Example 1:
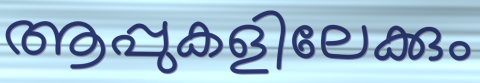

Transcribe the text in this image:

ആപ്പുകളിലേക്കും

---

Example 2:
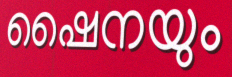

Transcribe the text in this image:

ഷൈനയും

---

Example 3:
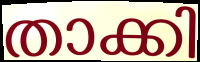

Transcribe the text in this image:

താക്കി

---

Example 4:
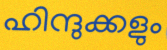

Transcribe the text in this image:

ഹിന്ദുക്കളും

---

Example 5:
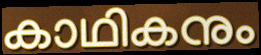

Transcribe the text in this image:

കാഥികനും